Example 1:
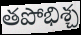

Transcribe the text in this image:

తపోభిశ్చ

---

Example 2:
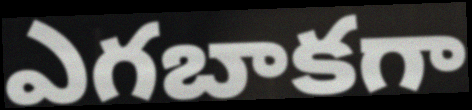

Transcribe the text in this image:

ఎగబాకగా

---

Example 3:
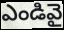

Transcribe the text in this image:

ఎండివై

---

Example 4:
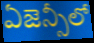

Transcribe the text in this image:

ఏజెన్సీలో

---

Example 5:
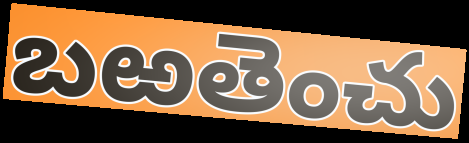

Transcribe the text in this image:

బఱతెంచు